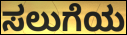
ಸಲುಗೆಯ